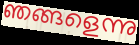
ഞങ്ങളെന്നു